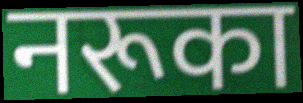
नरूका